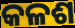
କଳଶ